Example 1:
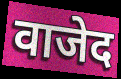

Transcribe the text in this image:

वाजेद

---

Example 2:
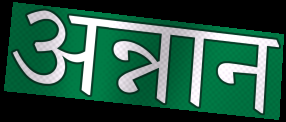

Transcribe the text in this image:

अन्नान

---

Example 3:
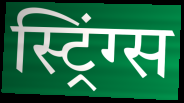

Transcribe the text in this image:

स्ट्रिंग्स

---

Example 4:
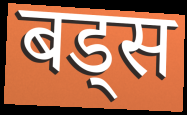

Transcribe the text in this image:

बड्स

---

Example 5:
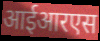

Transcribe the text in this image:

आईआरएस